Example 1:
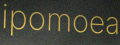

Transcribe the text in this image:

ipomoea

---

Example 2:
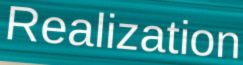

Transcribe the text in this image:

Realization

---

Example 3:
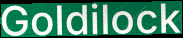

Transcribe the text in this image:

Goldilock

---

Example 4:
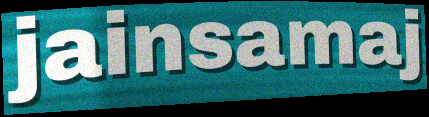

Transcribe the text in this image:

jainsamaj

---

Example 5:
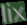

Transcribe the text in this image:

lix